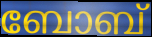
ബോബ്